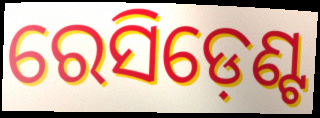
ରେସିଡ଼େଣ୍ଟ